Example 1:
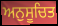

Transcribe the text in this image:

ਅਨੁਸੂਚਿਤ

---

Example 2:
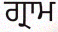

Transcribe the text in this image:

ਗ੍ਰਾਮ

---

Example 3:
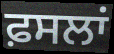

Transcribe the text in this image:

ਫ਼ਸਲਾਂ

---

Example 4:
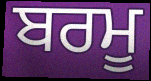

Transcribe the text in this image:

ਬਰਮੂ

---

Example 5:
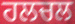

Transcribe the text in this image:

ਹਲਚਲ